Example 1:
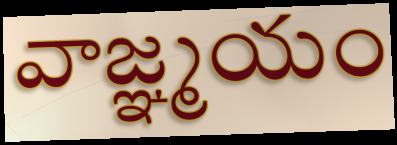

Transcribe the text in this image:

వాజ్ఞ్మయం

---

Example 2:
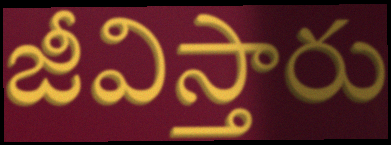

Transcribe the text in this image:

జీవిస్తారు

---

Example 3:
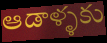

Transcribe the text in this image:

ఆడాళ్ళకు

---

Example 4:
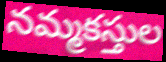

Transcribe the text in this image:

నమ్మకస్తుల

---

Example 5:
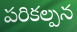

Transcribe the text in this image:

పరికల్పన